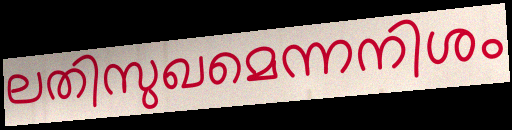
ലതിസുഖമെന്നനിശം